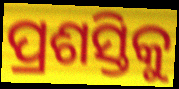
ପ୍ରଶସ୍ତିକୁ